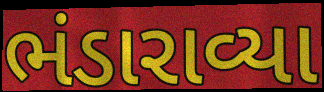
ભંડારાવ્યા